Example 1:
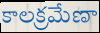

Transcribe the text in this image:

కాలక్రమేణా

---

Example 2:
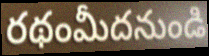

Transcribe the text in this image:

రథంమీదనుండి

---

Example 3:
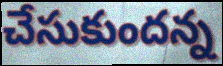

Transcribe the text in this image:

చేసుకుందన్న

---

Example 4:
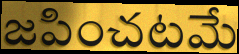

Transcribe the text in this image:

జపించటమే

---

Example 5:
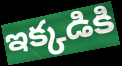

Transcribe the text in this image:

ఇక్కడికి